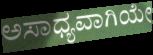
ಅಸಾಧ್ಯವಾಗಿಯೇ